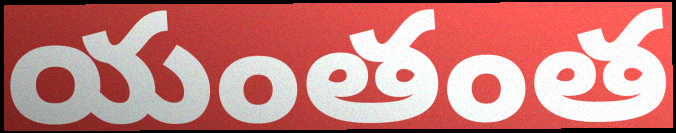
యంతంత